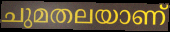
ചുമതലയാണ്